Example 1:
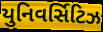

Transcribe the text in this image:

યુનિવર્સિટિઝ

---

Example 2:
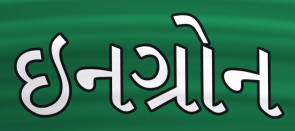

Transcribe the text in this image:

ઇનગ્રોન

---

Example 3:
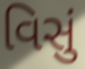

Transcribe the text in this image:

વિસું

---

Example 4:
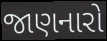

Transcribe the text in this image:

જાણનારો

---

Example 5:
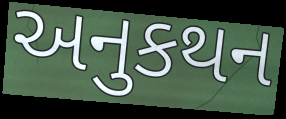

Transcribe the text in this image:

અનુકથન